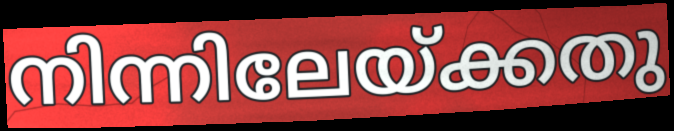
നിന്നിലേയ്ക്കതു